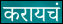
करायचं